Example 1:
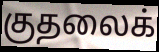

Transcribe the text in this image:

குதலைக்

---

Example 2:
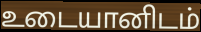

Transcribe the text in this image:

உடையானிடம்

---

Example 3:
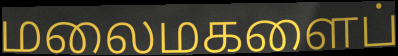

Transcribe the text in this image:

மலைமகளைப்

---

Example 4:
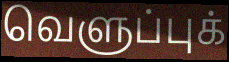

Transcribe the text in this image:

வெளுப்புக்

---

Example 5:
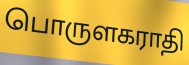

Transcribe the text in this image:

பொருளகராதி